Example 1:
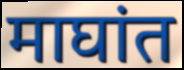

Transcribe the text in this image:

माघांत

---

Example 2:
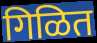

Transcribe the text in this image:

गिळित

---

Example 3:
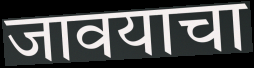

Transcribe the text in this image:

जावयाचा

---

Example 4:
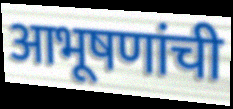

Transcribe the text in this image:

आभूषणांची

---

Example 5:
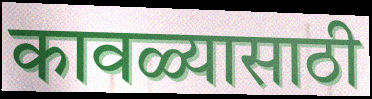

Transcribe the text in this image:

कावळ्यासाठी